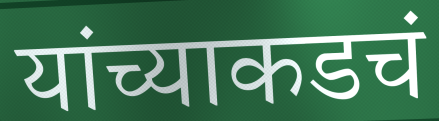
यांच्याकडचं